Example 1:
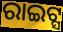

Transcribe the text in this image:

ରାଇଟ୍ସ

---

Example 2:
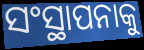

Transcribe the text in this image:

ସଂସ୍ଥାପନାକୁ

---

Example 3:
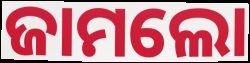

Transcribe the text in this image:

ଜାମଲୋ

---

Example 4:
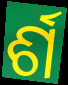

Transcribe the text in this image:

ର୍ଶ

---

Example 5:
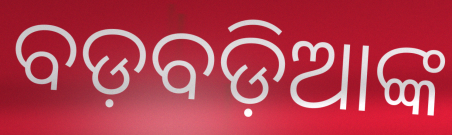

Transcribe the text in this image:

ବଡ଼ବଡ଼ିଆଙ୍କ